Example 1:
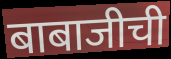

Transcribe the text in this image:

बाबाजीची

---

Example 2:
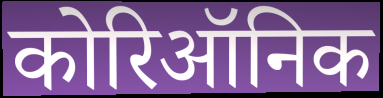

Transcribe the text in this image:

कोरिऑनिक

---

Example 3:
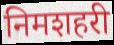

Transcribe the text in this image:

निमशहरी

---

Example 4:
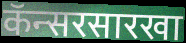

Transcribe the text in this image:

कॅन्सरसारखा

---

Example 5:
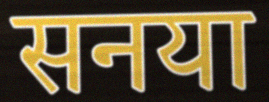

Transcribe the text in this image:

सनया